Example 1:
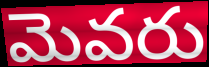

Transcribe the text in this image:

మెవరు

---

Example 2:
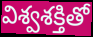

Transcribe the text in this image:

విశ్వశక్తితో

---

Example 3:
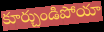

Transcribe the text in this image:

కూర్చుండిపోయా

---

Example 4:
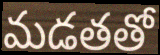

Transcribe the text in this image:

మడతతో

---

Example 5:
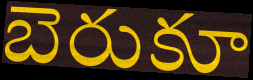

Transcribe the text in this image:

బెరుకూ